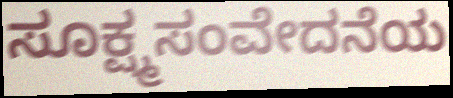
ಸೂಕ್ಷ್ಮಸಂವೇದನೆಯ